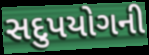
સદુપયોગની